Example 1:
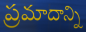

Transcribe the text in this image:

ప్రమాదాన్ని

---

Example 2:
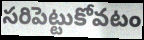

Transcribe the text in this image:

సరిపెట్టుకోవటం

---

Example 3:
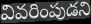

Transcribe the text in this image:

వివరింపుడని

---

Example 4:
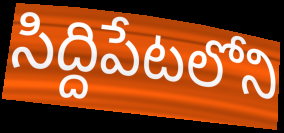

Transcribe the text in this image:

సిద్దిపేటలోని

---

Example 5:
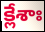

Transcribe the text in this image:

క్లేశాః